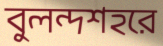
বুলন্দশহরে